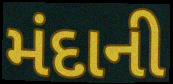
મંદાની